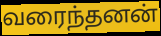
வரைந்தனன்